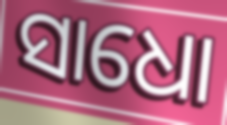
ସାଧୋ